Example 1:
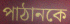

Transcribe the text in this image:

পাঠানকে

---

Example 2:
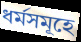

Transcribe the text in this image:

ধর্মসমূহে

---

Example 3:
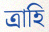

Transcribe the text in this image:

ত্রাহি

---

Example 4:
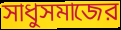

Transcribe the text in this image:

সাধুসমাজের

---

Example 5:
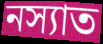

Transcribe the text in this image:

নস্যাত